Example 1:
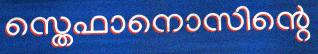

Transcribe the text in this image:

സ്തെഫാനൊസിന്റെ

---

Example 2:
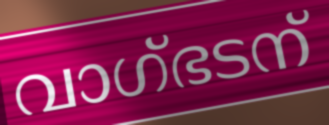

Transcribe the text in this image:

വാഗ്ഭടന്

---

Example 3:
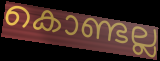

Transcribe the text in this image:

കൊണ്ടല്ല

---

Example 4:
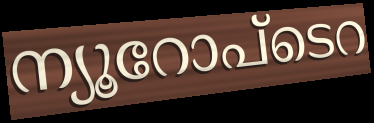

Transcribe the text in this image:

ന്യൂറോപ്ടെറ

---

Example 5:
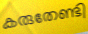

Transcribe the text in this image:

കരുതേണ്ടി